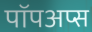
पॉपअप्स